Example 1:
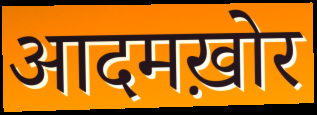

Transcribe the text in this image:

आदमख़ोर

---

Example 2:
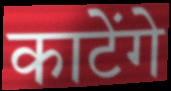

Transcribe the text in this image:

काटेंगे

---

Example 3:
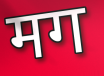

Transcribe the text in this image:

मग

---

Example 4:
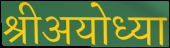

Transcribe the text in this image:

श्रीअयोध्या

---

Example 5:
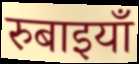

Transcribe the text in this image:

रुबाइयाँ